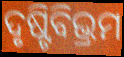
ଦୃଷ୍ଟିବିଭ୍ରମ